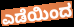
ಎಡೆಯಿಂದ